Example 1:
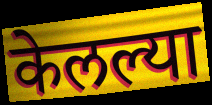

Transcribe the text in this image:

केलल्या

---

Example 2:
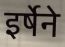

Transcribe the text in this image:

इर्षेने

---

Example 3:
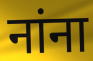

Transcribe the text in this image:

नांना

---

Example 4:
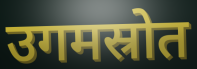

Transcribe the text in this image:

उगमस्रोत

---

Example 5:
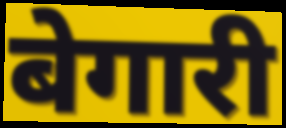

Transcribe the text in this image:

बेगारी